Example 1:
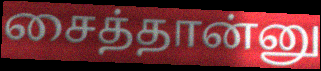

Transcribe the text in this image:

சைத்தான்னு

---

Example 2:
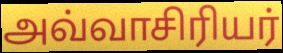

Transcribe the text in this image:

அவ்வாசிரியர்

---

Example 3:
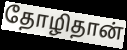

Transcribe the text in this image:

தோழிதான்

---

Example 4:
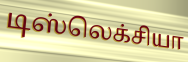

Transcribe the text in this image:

டிஸ்லெக்சியா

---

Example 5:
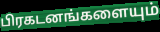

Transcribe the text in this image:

பிரகடனங்களையும்